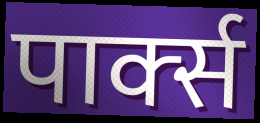
पार्क्‍स